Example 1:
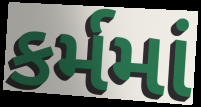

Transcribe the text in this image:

કર્મમાં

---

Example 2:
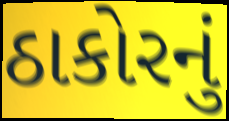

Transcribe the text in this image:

ઠાકોરનું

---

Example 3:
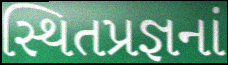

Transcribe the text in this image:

સ્થિતપ્રજ્ઞનાં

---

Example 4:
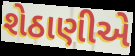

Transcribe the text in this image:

શેઠાણીએ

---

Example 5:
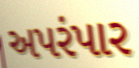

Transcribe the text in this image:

અપરંપાર